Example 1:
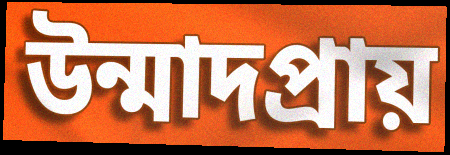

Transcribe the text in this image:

উন্মাদপ্রায়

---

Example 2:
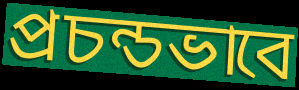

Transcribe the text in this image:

প্রচন্ডভাবে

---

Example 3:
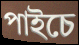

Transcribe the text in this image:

পাইচে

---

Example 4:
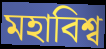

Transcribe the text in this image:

মহাবিশ্ব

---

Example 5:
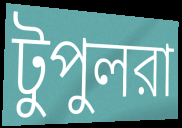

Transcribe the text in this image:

টুপুলরা